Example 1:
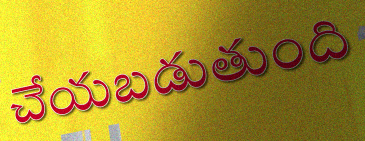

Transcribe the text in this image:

చేయబడుతుంది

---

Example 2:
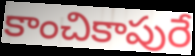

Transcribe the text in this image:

కాంచికాపురే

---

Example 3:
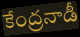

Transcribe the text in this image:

కేంద్రనాడీ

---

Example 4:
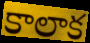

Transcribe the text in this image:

కాలాక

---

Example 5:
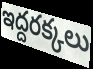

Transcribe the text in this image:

ఇద్దరక్కలు